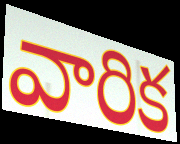
వారిక